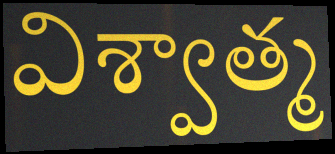
విశ్వాత్మ